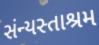
સંન્યસ્તાશ્રમ